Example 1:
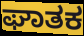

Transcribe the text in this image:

ಘಾತಕ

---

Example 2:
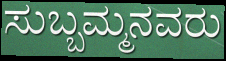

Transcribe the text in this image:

ಸುಬ್ಬಮ್ಮನವರು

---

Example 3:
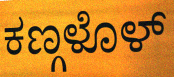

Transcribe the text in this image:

ಕಣ್ಗಳೊಳ್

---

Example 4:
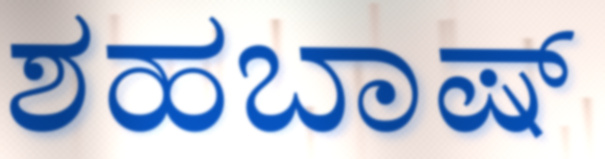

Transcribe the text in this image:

ಶಹಬಾಷ್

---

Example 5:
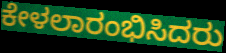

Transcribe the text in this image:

ಕೇಳಲಾರಂಭಿಸಿದರು